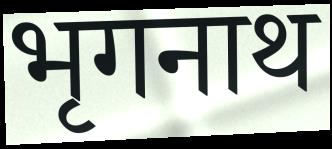
भृगनाथ